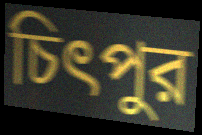
চিৎপুর